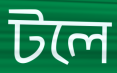
টলে